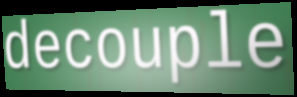
decouple